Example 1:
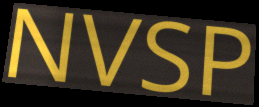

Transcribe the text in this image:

NVSP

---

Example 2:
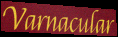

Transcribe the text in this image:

Varnacular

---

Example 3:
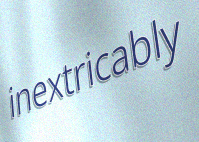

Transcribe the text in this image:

inextricably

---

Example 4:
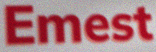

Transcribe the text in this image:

Emest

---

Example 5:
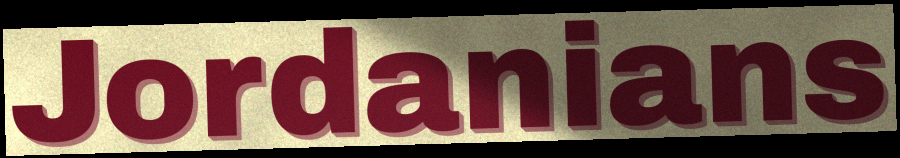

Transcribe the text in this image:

Jordanians